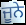
ਜੂਨੇ